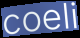
coeli